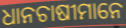
ଧାନଚାଷୀମାନେ